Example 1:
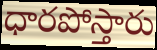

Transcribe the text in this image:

ధారపోస్తారు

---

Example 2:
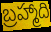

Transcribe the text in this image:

బ్రహ్మాది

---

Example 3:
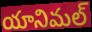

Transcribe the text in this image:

యానిమల్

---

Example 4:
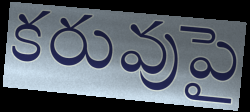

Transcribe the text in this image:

కరువుపై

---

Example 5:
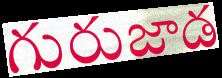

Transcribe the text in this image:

గురుజాడ